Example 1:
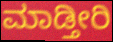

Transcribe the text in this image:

ಮಾಡ್ತೀರಿ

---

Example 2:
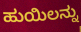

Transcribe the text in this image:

ಹುಯಿಲನ್ನು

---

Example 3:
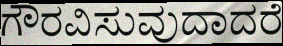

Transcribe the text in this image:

ಗೌರವಿಸುವುದಾದರೆ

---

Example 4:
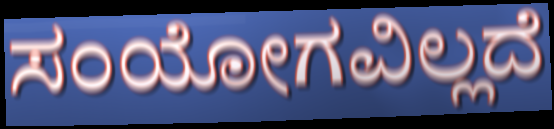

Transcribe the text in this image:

ಸಂಯೋಗವಿಲ್ಲದೆ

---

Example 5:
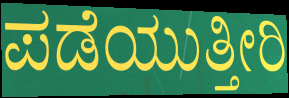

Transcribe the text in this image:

ಪಡೆಯುತ್ತೀರಿ